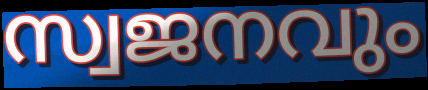
സ്വജനവും